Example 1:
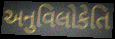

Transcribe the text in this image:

અનુવિલોકેતિ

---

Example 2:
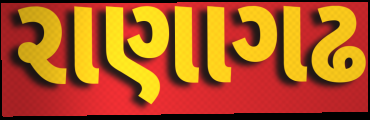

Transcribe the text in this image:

રાણાગઢ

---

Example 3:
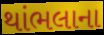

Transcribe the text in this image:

થાંભલાના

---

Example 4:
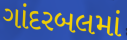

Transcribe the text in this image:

ગાંદરબલમાં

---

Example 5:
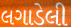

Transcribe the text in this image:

લગાડેલી